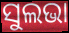
ସୁଲଭା